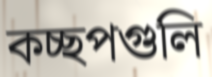
কচ্ছপগুলি